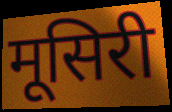
मूसिरी